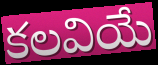
కలవియే